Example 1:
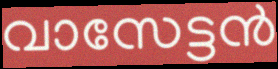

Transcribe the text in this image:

വാസേട്ടൻ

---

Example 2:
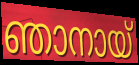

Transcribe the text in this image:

ഞാനായ്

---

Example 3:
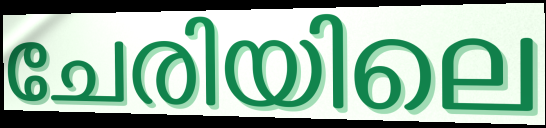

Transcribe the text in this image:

ചേരിയിലെ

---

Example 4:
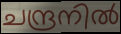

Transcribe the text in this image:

ചന്ദ്രനിൽ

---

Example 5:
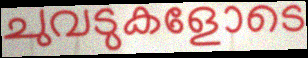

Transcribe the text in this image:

ചുവടുകളോടെ